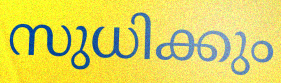
സുധിക്കും